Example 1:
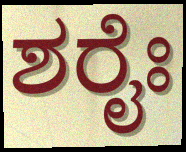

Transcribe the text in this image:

ಶರೈಃ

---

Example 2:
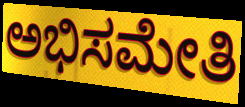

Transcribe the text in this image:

ಅಭಿಸಮೇತಿ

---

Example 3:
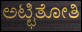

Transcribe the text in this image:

ಅಟ್ಟಿತೋತಿ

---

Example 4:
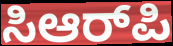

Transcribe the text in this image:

ಸಿಆರ್‌ಪಿ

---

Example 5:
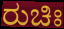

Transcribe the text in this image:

ರುಚಿಃ